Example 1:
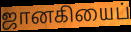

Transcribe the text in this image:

ஜானகியைப்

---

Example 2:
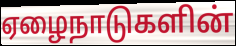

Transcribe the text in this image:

ஏழைநாடுகளின்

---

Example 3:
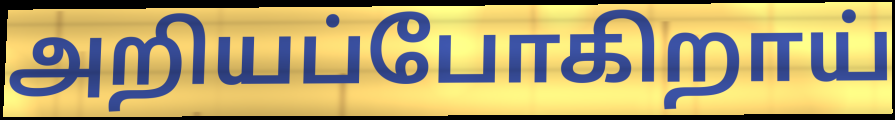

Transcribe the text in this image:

அறியப்போகிறாய்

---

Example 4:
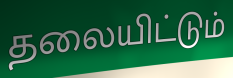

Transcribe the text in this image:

தலையிட்டும்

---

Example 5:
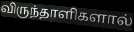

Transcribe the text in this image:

விருந்தாளிகளால்